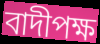
বাদীপক্ষ